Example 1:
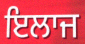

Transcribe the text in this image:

ਇਲਾਜ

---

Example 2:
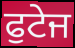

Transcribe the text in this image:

ਫੁਟੇਜ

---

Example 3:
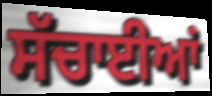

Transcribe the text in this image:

ਸੱਚਾਈਆਂ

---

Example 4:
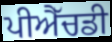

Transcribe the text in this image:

ਪੀਐੱਚਡੀ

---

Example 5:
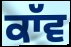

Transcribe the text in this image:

ਕਾੱਵ